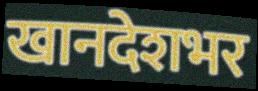
खानदेशभर